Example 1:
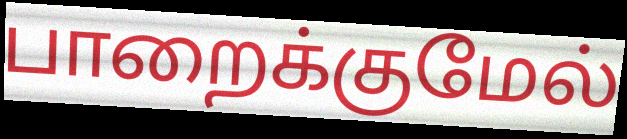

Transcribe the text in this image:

பாறைக்குமேல்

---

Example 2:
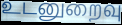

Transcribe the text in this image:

உடனுறைவு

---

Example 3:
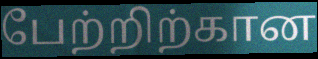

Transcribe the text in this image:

பேற்றிற்கான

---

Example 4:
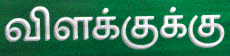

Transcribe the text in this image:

விளக்குக்கு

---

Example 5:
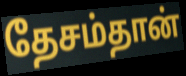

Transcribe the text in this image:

தேசம்தான்